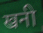
खनी